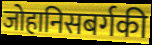
जोहानिसबर्गकी